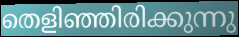
തെളിഞ്ഞിരിക്കുന്നു